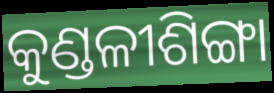
କୁଣ୍ଡଳୀଶିଙ୍ଗା